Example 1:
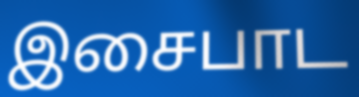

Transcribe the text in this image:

இசைபாட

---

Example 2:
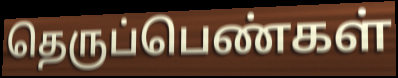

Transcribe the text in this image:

தெருப்பெண்கள்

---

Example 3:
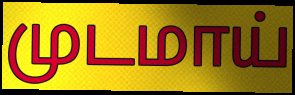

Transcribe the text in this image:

முடமாய்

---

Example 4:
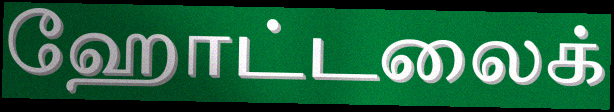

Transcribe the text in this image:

ஹோட்டலைக்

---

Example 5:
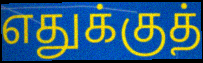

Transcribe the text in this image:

எதுக்குத்